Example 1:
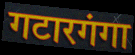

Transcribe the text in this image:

गटारगंगा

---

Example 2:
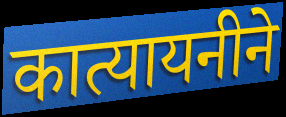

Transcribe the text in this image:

कात्यायनीने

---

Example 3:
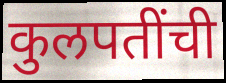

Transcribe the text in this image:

कुलपतींची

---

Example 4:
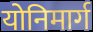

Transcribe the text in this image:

योनिमार्ग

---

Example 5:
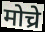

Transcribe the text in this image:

मोच्रे